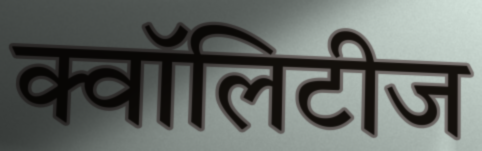
क्वॉलिटीज